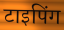
टाइपिंग